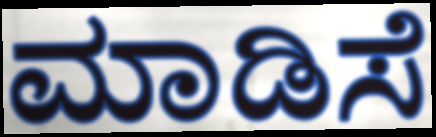
ಮಾಡಿಸೆ